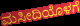
ಮಸೀದಿಯೊಳಗೆ